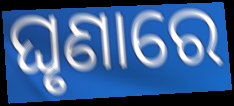
ଘୃଣାରେ